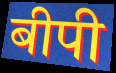
बीपी